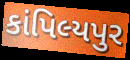
કાંપિલ્યપુર